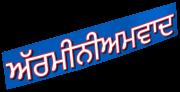
ਅੱਰਮੀਨੀਅਮਵਾਦ